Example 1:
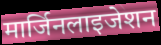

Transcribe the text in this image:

मार्जिनलाइजेशन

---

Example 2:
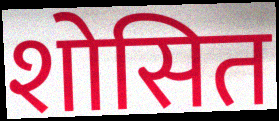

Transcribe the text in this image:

शोसित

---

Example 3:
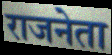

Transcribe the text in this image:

राजनेता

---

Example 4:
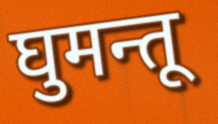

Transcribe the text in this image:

घुमन्तू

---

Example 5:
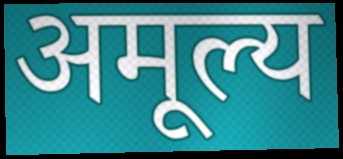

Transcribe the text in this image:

अमूल्य